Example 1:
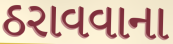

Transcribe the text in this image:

ઠરાવવાના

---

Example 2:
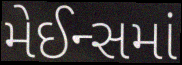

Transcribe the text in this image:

મેઈન્સમાં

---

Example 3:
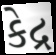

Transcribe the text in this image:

કેદ્ર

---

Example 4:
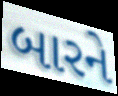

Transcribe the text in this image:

બારને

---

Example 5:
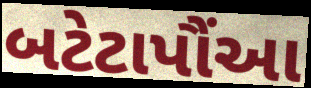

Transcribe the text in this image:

બટેટાપૌંઆ